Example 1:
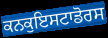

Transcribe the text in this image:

ਕਨਕੁਇਸਟਾਡੋਰਸ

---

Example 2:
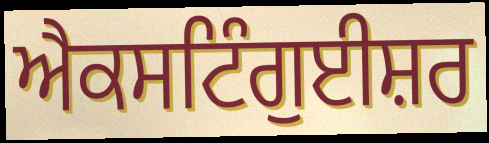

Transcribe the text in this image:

ਐਕਸਟਿੰਗੁਈਸ਼ਰ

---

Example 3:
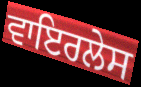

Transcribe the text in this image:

ਵਾਇਰਲੇਸ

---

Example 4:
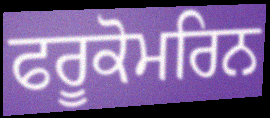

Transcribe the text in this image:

ਫਰੂਕੋਮਰਿਨ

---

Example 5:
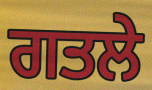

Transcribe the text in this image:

ਗਤਲੇ